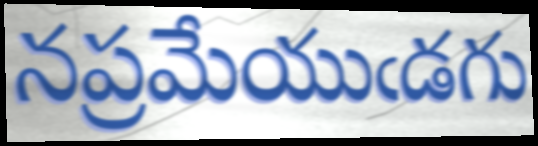
నప్రమేయుఁడగు